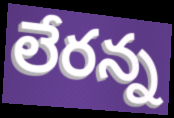
లేరన్న